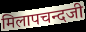
मिलापचन्दजी